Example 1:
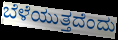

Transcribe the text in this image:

ಬೆಳೆಯುತ್ತದೆಂದು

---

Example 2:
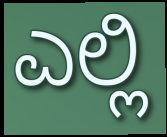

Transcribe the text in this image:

ಎಲ್ಲಿ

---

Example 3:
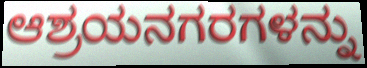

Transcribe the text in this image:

ಆಶ್ರಯನಗರಗಳನ್ನು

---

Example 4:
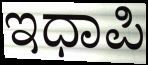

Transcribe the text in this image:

ಇಧಾಪಿ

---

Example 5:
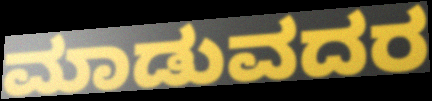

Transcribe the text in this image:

ಮಾಡುವದರ